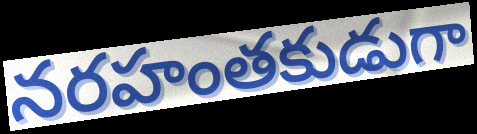
నరహంతకుడుగా